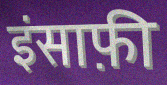
इंसाफ़ी